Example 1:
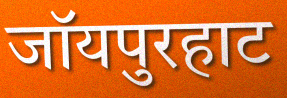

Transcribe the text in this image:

जॉयपुरहाट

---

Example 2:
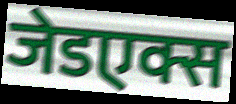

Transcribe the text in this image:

जेडएक्स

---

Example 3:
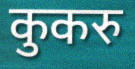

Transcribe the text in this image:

कुकरु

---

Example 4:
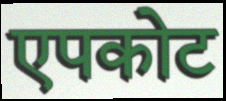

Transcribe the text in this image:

एपकोट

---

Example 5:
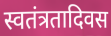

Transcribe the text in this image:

स्वतंत्रतादिवस